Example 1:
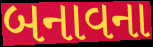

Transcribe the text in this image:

બનાવના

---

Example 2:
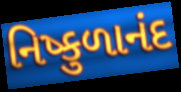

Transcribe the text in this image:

નિષ્કુળાનંદ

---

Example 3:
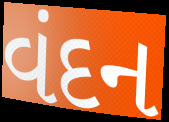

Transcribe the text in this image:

વંદન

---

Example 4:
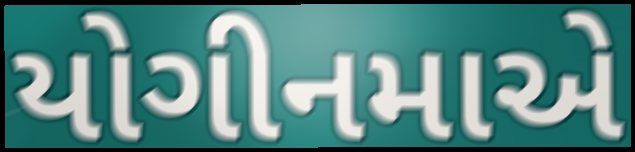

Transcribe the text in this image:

યોગીનમાએ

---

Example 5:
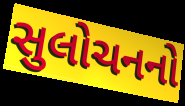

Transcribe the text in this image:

સુલોચનનો